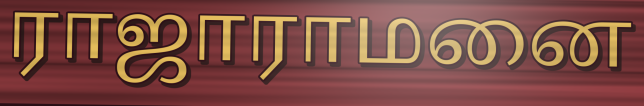
ராஜாராமனை